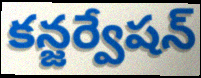
కన్జర్వేషన్